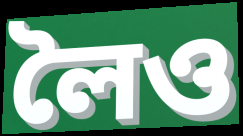
লৈও